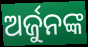
ଅର୍ଜୁନଙ୍କ